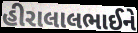
હીરાલાલભાઈને